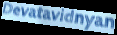
Devatavidnyan